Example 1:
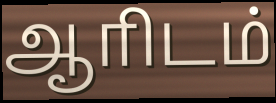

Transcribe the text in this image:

ஆரிடம்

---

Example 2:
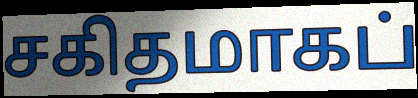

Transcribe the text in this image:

சகிதமாகப்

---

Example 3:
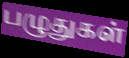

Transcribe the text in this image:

பழுதுகள்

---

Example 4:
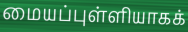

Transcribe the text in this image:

மையப்புள்ளியாகக்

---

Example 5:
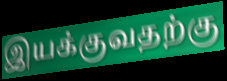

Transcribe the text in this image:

இயக்குவதற்கு